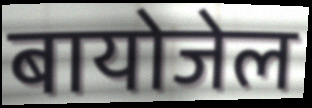
बायोजेल